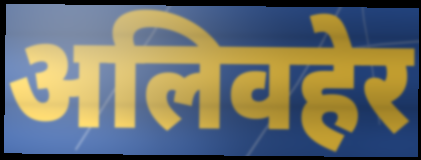
अलिवहेर